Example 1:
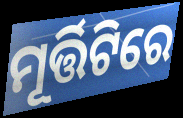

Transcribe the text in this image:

ମୂର୍ତ୍ତିଟିରେ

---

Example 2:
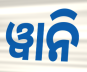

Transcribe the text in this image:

ୱାନି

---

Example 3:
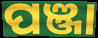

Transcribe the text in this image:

ପଞ୍ଜା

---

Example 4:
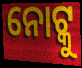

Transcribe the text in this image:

ନୋଟ୍କୁ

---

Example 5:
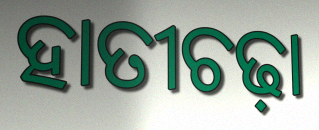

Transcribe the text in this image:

ହାତୀଚଢ଼ା